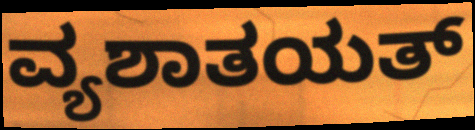
ವ್ಯಶಾತಯತ್